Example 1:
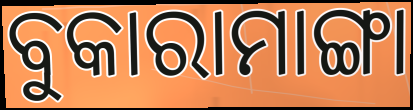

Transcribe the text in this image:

ବୁକାରାମାଙ୍ଗା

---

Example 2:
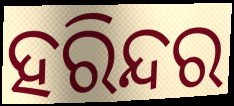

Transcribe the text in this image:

ହରିନ୍ଦର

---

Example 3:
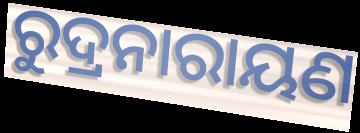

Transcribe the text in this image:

ରୁଦ୍ରନାରାୟଣ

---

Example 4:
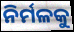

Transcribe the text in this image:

ନିର୍ମଳକୁ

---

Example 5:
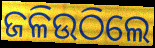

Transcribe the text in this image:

ଜଳିଉଠିଲେ